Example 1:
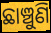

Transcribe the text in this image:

ଛାଞ୍ଚୁଣି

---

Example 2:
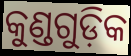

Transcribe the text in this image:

କୁଣ୍ଡଗୁଡ଼ିକ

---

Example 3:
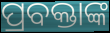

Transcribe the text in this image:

ପ୍ରବକ୍ତାଙ୍କ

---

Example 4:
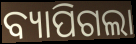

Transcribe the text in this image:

ବ୍ୟାପିଗଲା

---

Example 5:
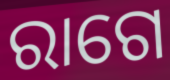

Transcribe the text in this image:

ରାଗେ